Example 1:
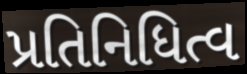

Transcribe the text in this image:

પ્રતિનિધિત્વ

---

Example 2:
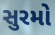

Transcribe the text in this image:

સુરમો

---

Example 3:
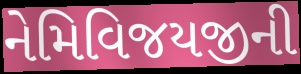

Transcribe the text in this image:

નેમિવિજયજીની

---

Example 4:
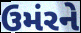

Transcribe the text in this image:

ઉમંરને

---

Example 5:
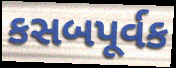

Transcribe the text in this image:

કસબપૂર્વક